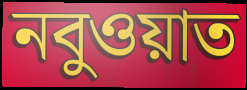
নবুওয়াত